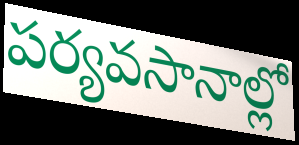
పర్యవసానాల్లో